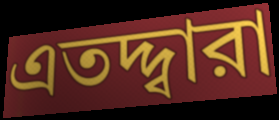
এতদ্দ্বারা